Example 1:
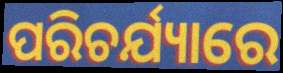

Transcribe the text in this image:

ପରିଚର୍ଯ୍ୟାରେ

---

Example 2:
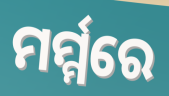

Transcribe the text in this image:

ମର୍ମ୍ମରେ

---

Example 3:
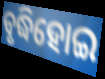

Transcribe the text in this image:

ବୃଦ୍ଧିହୋଇ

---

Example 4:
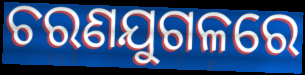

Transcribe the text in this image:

ଚରଣଯୁଗଳରେ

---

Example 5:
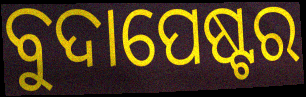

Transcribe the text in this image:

ବୁଦାପେଷ୍ଟର